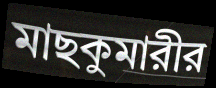
মাছকুমারীর